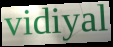
vidiyal